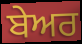
ਬੇਅਰ